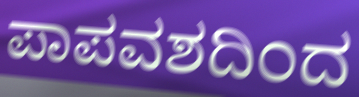
ಪಾಪವಶದಿಂದ